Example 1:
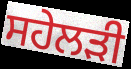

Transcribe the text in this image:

ਸਹੇਲੜੀ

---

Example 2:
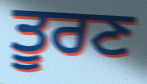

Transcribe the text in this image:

ਤੂਰਣ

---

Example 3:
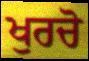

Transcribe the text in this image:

ਖੁਰਚੋ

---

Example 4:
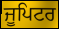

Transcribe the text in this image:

ਜੂਪਿਟਰ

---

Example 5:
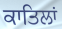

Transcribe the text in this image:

ਕਾਤਿਲਾਂ